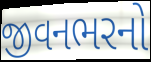
જીવનભરનો